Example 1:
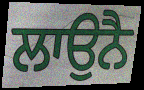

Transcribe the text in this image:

ਲਾਉਨੈ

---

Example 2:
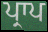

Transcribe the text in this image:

ਪ੍ਰਾਪ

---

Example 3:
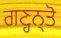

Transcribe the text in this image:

ਗਣ੍ਹਨ੍ਤੋ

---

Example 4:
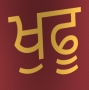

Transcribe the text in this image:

ਖੁਫੂ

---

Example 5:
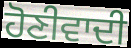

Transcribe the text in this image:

ਹੋਣੀਵਾਦੀ